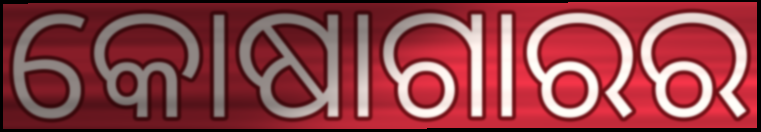
କୋଷାଗାରର